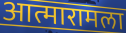
आत्मारामला